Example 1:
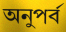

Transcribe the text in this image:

অনুপর্ব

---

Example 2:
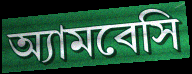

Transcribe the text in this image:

অ্যামবেসি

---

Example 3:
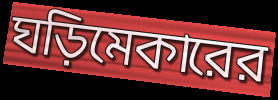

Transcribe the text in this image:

ঘড়িমেকারের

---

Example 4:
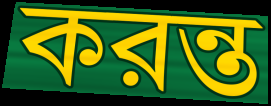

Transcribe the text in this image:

করন্ত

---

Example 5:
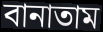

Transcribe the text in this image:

বানাতাম